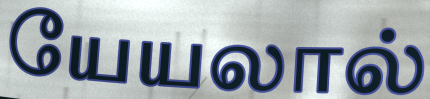
யேயலால்